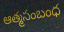
ఆత్మసంబంధ